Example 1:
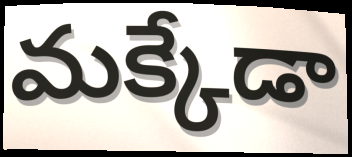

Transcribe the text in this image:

మక్కేడా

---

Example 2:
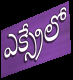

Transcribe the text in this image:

ఎక్స్రేలో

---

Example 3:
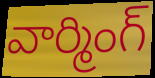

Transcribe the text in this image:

వార్మింగ్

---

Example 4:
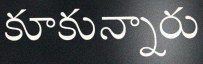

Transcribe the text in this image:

కూకున్నారు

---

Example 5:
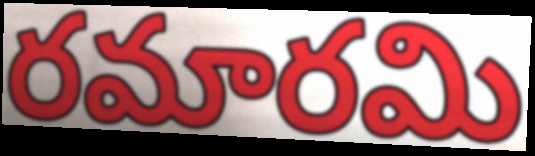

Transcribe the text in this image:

రమారమి